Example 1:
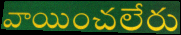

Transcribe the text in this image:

వాయించలేరు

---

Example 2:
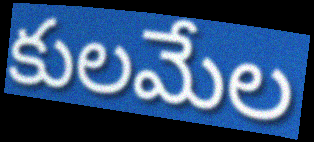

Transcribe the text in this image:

కులమేల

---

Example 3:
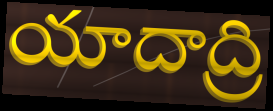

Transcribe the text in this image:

యాదాద్రి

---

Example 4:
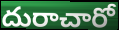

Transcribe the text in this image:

దురాచారో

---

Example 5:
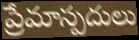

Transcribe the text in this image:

ప్రేమాస్పదులు